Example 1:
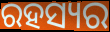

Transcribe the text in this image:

ରହସ୍ୟର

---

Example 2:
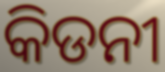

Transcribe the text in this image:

କିଡନୀ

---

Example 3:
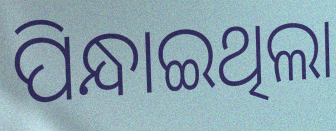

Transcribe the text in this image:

ପିନ୍ଧାଇଥିଲା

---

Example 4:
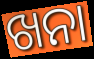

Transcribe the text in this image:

ଖନା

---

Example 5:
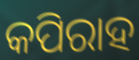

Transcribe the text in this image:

କପିରାହ